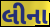
લીના